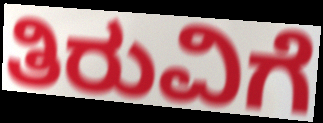
ತಿರುವಿಗೆ